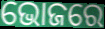
ଭୋଜରେ